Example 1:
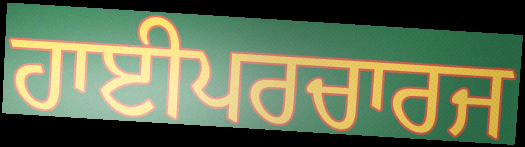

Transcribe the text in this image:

ਹਾਈਪਰਚਾਰਜ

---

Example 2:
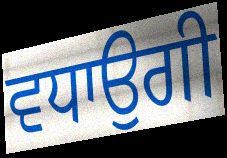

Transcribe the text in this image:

ਵਧਾਉਗੀ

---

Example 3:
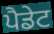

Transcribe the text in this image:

ਪੈਡੇਟ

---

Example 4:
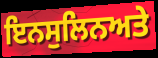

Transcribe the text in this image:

ਇਨਸੁਲਿਨਅਤੇ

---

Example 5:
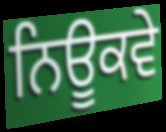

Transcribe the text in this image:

ਨਿਊਕਵੇ